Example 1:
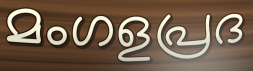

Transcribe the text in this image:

മംഗളപ്രദ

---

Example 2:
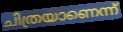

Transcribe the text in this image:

ചിത്രയാണെന്ന്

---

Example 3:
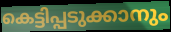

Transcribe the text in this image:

കെട്ടിപ്പടുക്കാനും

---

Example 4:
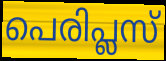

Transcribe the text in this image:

പെരിപ്ലസ്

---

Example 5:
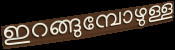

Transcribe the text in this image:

ഇറങ്ങുമ്പോഴുള്ള